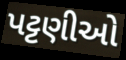
પટ્ટણીઓ